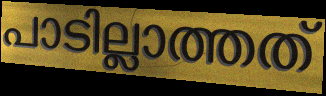
പാടില്ലാത്തത്